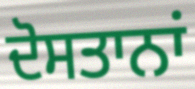
ਦੋਸਤਾਨਾਂ